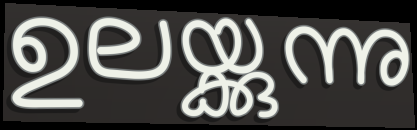
ഉലയ്ക്കുന്നു